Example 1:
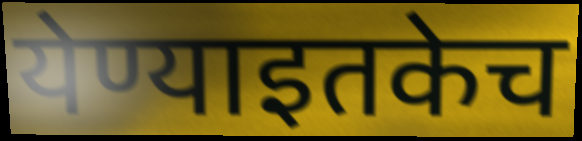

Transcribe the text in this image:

येण्याइतकेच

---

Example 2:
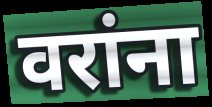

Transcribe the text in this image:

वरांना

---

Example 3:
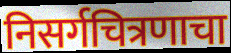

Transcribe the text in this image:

निसर्गचित्रणाचा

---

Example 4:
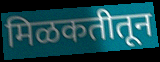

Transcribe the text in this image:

मिळकतीतून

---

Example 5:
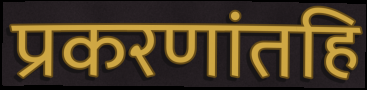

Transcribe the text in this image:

प्रकरणांतहि